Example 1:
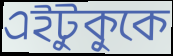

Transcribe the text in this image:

এইটুকুকে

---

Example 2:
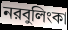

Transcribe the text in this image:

নরবুলিংকা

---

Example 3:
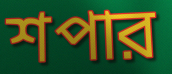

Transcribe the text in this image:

শপার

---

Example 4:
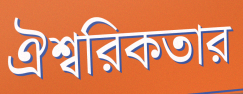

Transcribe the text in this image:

ঐশ্বরিকতার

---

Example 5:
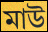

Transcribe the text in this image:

মাউ